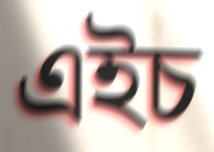
এইচ